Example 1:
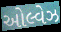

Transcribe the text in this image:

ઓલ્વેઝ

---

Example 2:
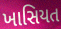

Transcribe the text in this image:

ખાસિયત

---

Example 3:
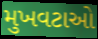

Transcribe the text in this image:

મુખવટાઓ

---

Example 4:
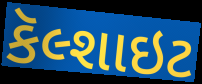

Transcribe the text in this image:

કૅલ્શાઇટ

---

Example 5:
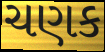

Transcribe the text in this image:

ચણક